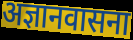
अज्ञानवासना